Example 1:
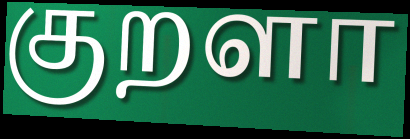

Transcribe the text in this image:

குறளா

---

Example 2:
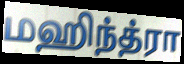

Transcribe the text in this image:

மஹிந்த்ரா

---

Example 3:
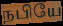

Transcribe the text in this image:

நபியே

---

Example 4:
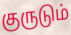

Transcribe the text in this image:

குருடும்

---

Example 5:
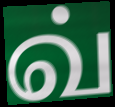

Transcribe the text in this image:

வ்